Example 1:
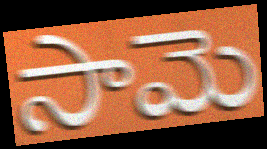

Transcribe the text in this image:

సామె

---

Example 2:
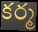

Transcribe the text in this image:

కర్మ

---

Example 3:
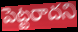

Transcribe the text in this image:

పెట్టరాదని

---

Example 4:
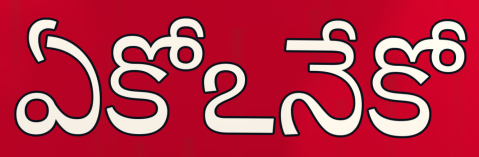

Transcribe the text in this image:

ఏకోఽనేకో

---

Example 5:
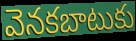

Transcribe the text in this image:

వెనకబాటుకు